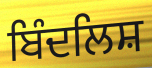
ਬਿੰਦਲਿਸ਼